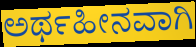
ಅರ್ಥಹೀನವಾಗಿ